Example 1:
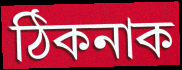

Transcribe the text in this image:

ঠিকনাক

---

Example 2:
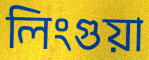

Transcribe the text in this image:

লিংগুয়া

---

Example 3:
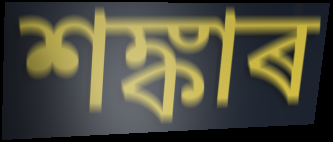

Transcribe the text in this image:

শঙ্কাৰ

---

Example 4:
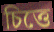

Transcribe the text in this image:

চিত্তে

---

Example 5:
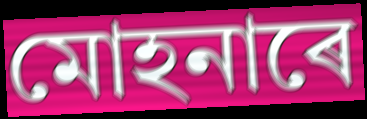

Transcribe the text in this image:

মোহনাৰে